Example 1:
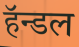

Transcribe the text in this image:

हॅन्डल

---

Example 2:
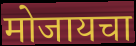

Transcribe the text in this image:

मोजायचा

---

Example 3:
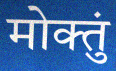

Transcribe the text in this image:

मोक्तुं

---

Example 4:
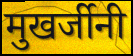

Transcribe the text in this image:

मुखर्जीनी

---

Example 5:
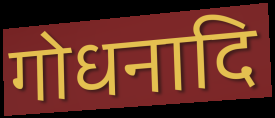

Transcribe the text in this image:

गोधनादि